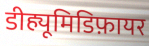
डीह्यूमिडिफ़ायर